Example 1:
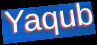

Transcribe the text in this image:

Yaqub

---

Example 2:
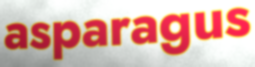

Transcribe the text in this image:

asparagus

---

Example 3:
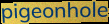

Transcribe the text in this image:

pigeonhole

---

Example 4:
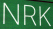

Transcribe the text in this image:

NRK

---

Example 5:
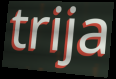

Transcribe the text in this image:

trija